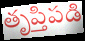
తృప్తిపడి